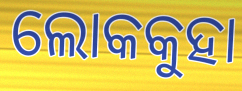
ଲୋକକୁହା